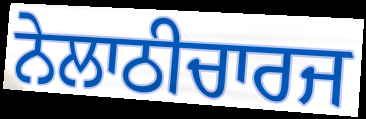
ਨੇਲਾਠੀਚਾਰਜ